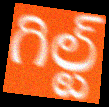
గిల్ట్